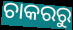
ଚାକରରୁ